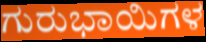
ಗುರುಭಾಯಿಗಳ